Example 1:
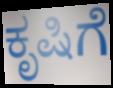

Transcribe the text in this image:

ಕೃಷಿಗೆ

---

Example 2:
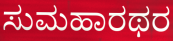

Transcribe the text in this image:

ಸುಮಹಾರಥರ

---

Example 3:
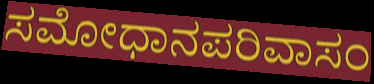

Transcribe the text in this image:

ಸಮೋಧಾನಪರಿವಾಸಂ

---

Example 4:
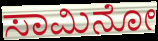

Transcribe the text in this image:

ಸಾಮಿನೋ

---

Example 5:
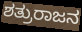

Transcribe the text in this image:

ಶತ್ರುರಾಜನ